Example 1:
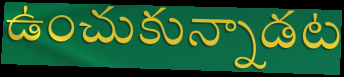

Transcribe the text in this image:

ఉంచుకున్నాడట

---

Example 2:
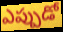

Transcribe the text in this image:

ఎప్పుడో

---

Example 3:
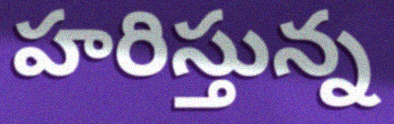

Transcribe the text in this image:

హరిస్తున్న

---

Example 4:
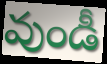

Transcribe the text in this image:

వుండీ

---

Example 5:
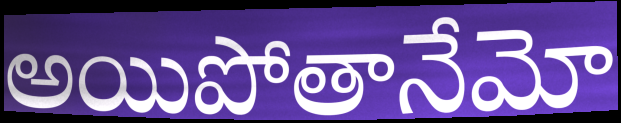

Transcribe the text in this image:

అయిపోతానేమో